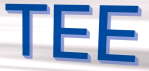
TEE